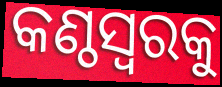
କଣ୍ଠସ୍ୱରକୁ